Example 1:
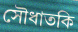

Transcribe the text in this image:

সৌধাতকি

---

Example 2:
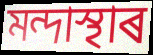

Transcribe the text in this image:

মন্দাস্থাৰ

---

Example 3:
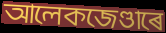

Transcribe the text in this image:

আলেকজেণ্ডাৰে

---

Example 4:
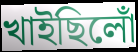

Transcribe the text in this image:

খাইছিলোঁ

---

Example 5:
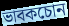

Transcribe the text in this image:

ভাবকচোন